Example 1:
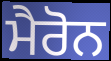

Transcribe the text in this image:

ਮੈਰੋਨ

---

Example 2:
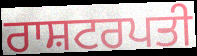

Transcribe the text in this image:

ਰਾਸ਼ਟਰਪਤੀ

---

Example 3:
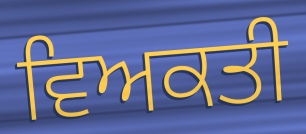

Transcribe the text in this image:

ਵਿਅਕਤੀ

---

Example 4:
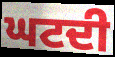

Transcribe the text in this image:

ਘਟਦੀ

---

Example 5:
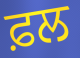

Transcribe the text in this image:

ਫ਼ਲ